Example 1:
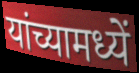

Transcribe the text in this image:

यांच्यामध्यें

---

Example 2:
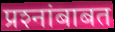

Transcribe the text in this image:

प्रश्नांबाबत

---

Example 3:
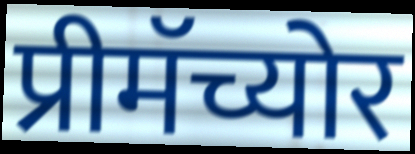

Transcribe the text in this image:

प्रीमॅच्योर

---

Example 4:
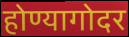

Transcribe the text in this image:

होण्यागोदर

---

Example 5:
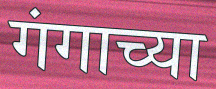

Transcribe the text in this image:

गंगाच्या